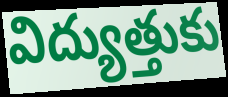
విద్యుత్తుకు